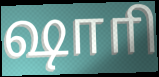
ஷாரி